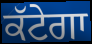
ਕੱਟੇਗਾ